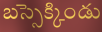
బస్సెక్కిండు